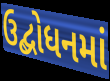
ઉદ્બોધનમાં